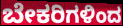
ಬೇಕರಿಗಳಿಂದ